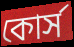
কোর্স